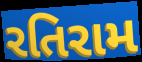
રતિરામ